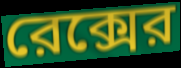
রেক্সের